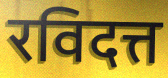
रविदत्त